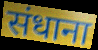
संधाना